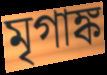
মৃগাঙ্ক